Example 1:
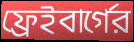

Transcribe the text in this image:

ফ্রেইবার্গের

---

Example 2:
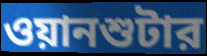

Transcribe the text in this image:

ওয়ানশুটার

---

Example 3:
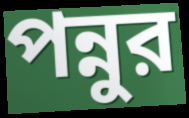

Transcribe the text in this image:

পন্নুর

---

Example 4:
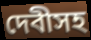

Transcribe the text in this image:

দেবীসহ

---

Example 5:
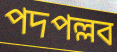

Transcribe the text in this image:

পদপল্লব